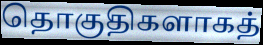
தொகுதிகளாகத்